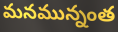
మనమున్నంత